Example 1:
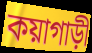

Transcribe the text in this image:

কয়াগাড়ী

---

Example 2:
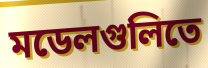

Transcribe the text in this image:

মডেলগুলিতে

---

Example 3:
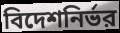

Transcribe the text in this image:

বিদেশনির্ভর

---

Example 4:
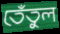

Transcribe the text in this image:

তেঁতুল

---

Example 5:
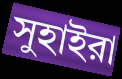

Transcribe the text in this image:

সুহাইরা